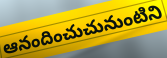
ఆనందించుచునుంటిని